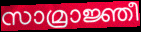
സാമ്രാജ്ഞീ